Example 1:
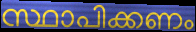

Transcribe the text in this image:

സ്ഥാപിക്കണം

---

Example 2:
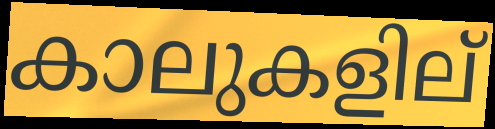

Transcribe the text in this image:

കാലുകളില്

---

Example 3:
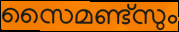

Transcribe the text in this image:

സൈമണ്ട്സും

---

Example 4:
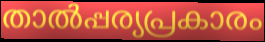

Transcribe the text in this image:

താൽപ്പര്യപ്രകാരം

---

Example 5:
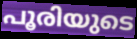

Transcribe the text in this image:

പൂരിയുടെ